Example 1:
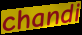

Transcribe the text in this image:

chandi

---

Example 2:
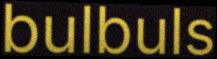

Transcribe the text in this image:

bulbuls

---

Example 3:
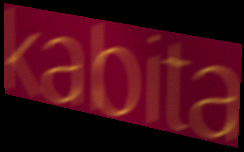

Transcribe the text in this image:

kabita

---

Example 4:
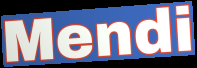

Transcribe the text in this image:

Mendi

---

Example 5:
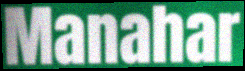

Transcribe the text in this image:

Manahar